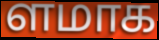
ளமாக